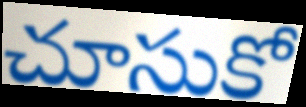
చూసుకో